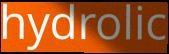
hydrolic